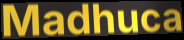
Madhuca